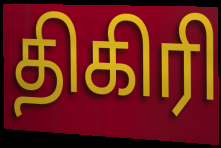
திகிரி